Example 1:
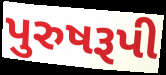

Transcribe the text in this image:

પુરુષરૂપી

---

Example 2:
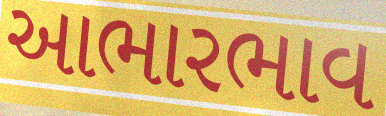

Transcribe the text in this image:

આભારભાવ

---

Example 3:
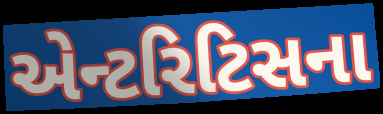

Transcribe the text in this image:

એન્ટરિટિસના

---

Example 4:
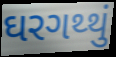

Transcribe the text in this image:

ઘરગથ્થું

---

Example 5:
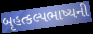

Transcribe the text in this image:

બૃહત્કલ્પભાષ્યની